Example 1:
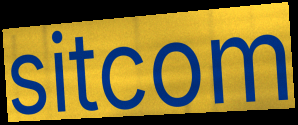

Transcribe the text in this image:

sitcom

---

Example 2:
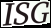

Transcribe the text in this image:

ISG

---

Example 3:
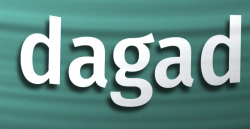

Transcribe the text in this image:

dagad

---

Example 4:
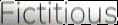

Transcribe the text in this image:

Fictitious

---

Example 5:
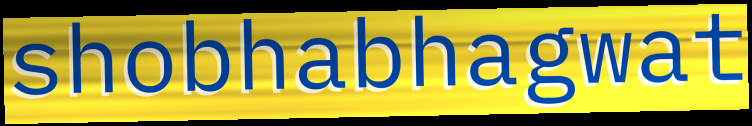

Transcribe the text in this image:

shobhabhagwat